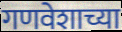
गणवेशाच्या